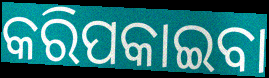
କରିପକାଇବା